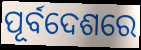
ପୂର୍ବଦେଶରେ